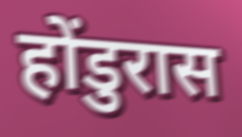
होंडुरास